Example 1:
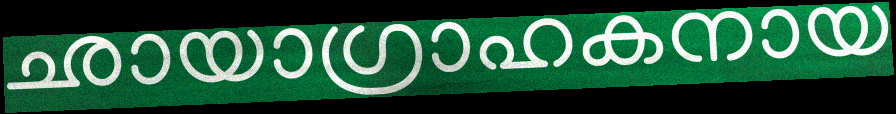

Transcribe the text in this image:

ഛായാഗ്രാഹകനായ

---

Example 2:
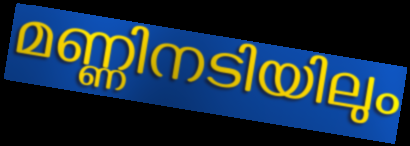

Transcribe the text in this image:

മണ്ണിനടിയിലും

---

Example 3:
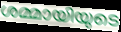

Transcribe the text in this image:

ശമ്മായിയുടെ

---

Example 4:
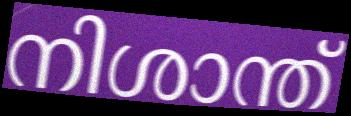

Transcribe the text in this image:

നിശാന്ത്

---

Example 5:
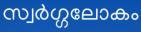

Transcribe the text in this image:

സ്വർഗ്ഗലോകം